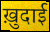
ख़ुदाई